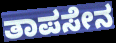
ತಾಪಸೇನ